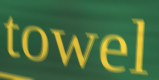
towel